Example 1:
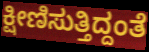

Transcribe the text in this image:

ಕ್ಷೀಣಿಸುತ್ತಿದ್ದಂತೆ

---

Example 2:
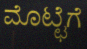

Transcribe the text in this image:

ಮೊಟ್ಟೆಗೆ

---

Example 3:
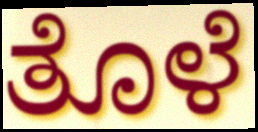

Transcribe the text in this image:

ತೊಳೆ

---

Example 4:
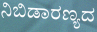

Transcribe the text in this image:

ನಿಬಿಡಾರಣ್ಯದ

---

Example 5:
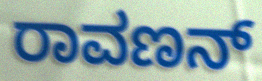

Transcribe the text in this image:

ರಾವಣನ್